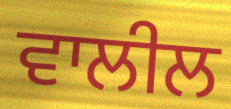
ਵਾਲੀਲ